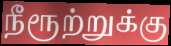
நீரூற்றுக்கு